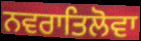
ਨਵਰਾਤਿਲੋਵਾ